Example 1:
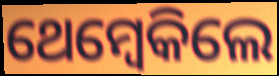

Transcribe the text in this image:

ଥେମ୍ବେକିଲେ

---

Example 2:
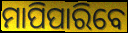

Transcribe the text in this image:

ମାପିପାରିବେ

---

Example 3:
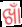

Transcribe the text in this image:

ଖାଁ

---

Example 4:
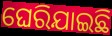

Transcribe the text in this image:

ଘେରିଯାଇଛି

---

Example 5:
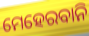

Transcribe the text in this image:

ମେହେରବାନି